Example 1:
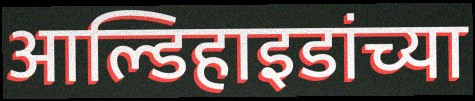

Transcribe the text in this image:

आल्डिहाइडांच्या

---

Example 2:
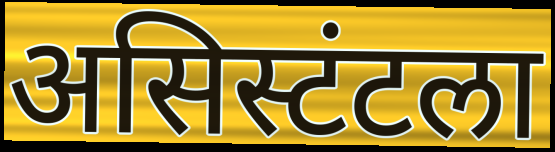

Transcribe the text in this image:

असिस्टंटला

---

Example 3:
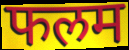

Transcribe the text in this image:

फलम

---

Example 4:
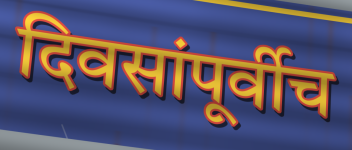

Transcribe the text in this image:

दिवसांपूर्वीच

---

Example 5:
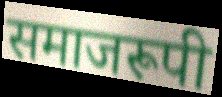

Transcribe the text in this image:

समाजरूपी